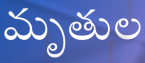
మృతుల